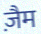
ज़ैम